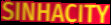
SINHACITY